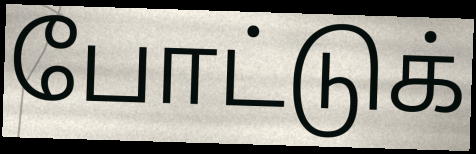
போட்டுக்